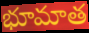
భూమాత